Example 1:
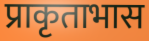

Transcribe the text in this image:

प्राकृताभास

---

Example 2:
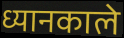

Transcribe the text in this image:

ध्यानकाले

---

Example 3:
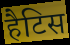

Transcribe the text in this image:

हैटिस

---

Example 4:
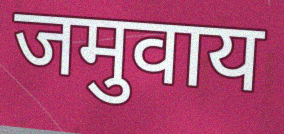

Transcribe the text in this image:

जमुवाय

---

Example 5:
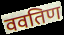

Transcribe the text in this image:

ववतिण